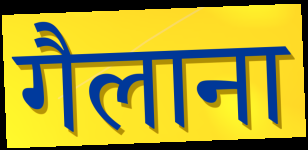
गैलाना